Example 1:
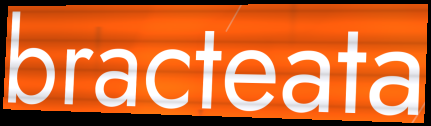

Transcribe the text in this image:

bracteata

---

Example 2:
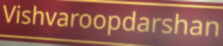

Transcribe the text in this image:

Vishvaroopdarshan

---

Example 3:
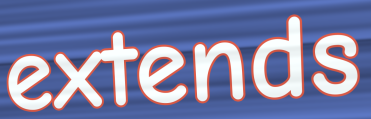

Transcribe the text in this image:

extends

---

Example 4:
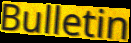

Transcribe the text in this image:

Bulletin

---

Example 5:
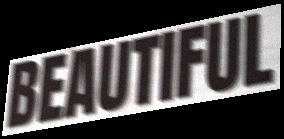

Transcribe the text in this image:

BEAUTIFUL